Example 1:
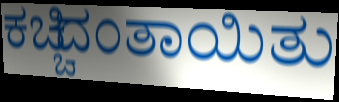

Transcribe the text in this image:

ಕಚ್ಚಿದಂತಾಯಿತು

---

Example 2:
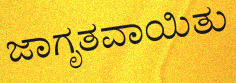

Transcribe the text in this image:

ಜಾಗೃತವಾಯಿತು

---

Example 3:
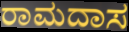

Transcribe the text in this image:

ರಾಮದಾಸ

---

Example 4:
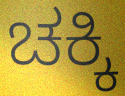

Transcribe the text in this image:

ಚಕ್ಕಿ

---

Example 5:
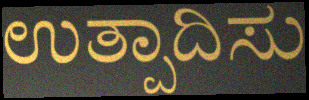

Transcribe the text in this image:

ಉತ್ಪಾದಿಸು